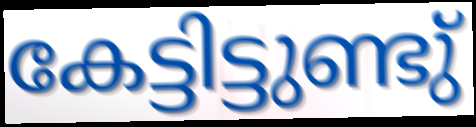
കേട്ടിട്ടുണ്ടു്